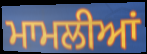
ਮਾਮਲੀਆਂ